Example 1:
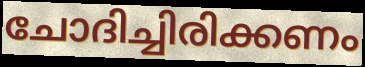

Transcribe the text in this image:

ചോദിച്ചിരിക്കണം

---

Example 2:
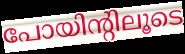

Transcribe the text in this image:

പോയിന്റിലൂടെ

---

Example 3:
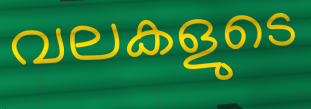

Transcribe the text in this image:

വലകളുടെ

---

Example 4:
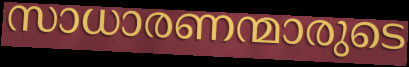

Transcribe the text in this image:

സാധാരണന്മാരുടെ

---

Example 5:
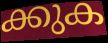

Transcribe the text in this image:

ക്കുക